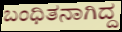
ಬಂಧಿತನಾಗಿದ್ದ